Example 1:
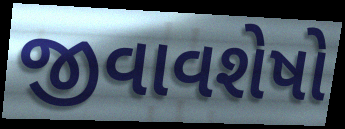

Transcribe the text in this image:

જીવાવશેષો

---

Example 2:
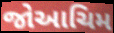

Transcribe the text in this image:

જોઆચિમ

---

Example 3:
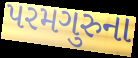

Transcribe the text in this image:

પરમગુરુના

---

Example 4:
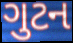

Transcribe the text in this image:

ગુટન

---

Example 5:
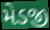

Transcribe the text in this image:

મેડજી